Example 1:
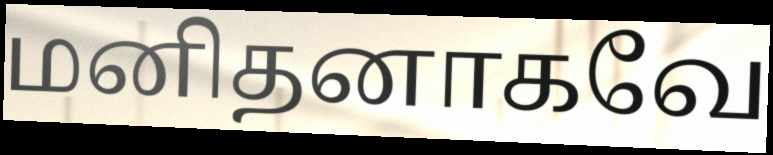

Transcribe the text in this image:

மனிதனாகவே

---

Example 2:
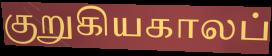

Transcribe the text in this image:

குறுகியகாலப்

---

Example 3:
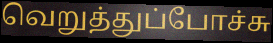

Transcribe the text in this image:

வெறுத்துப்போச்சு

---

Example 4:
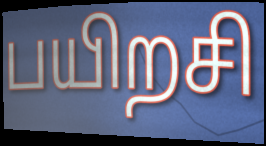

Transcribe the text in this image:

பயிறசி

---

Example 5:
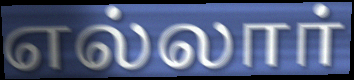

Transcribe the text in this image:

எல்லார்